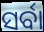
ସର୍ବା